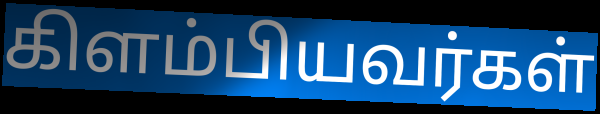
கிளம்பியவர்கள்